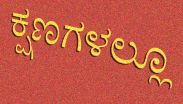
ಕ್ಷಣಗಳಲ್ಲೂ